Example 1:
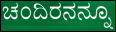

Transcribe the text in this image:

ಚಂದಿರನನ್ನೂ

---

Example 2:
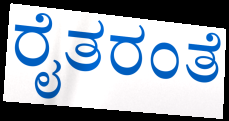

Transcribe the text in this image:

ರೈತರಂತೆ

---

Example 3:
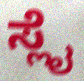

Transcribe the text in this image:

ಸ್ಲೈ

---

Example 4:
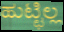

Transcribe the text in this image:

ಹುಟ್ಟಿಲ್ಲ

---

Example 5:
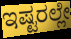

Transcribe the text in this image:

ಇಷ್ಟರಲ್ಲೇ